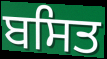
ਬਸਿਤ